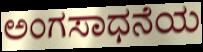
ಅಂಗಸಾಧನೆಯ